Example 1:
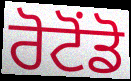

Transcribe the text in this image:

ਰੋਟੋਂਡੋ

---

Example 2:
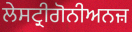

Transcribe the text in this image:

ਲੇਸਟ੍ਰੀਗੋਨੀਅਨਜ਼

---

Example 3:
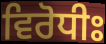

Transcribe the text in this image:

ਵਿਰੋਧੀਃ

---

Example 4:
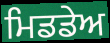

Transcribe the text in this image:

ਮਿਡਡੇਅ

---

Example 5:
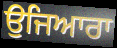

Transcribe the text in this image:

ਉਜਿਆਰਾ